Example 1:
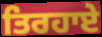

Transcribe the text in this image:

ਤਿਰਹਾਏ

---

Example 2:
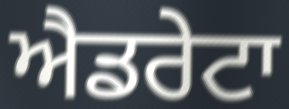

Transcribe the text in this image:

ਐਡਰੇਟਾ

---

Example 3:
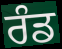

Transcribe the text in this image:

ਰੰਡ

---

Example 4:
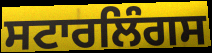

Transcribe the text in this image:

ਸਟਾਰਲਿੰਗਸ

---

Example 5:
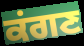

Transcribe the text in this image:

ਕਂਗਣ